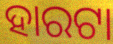
ହାରଟା